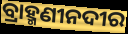
ବ୍ରାହ୍ମଣୀନଦୀର